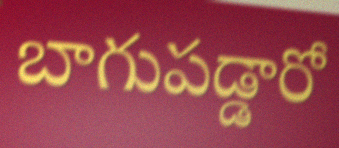
బాగుపడ్డారో